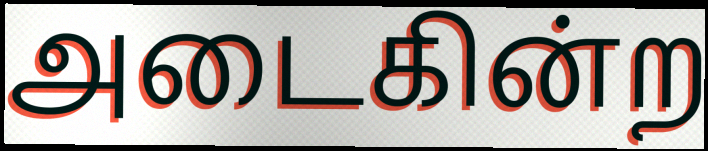
அடைகின்ற